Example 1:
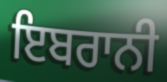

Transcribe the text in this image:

ਇਬਰਾਨੀ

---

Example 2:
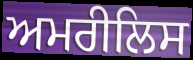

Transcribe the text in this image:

ਅਮਰੀਲਿਸ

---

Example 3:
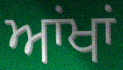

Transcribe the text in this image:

ਆਂਖਾਂ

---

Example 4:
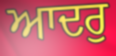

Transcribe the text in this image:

ਆਦਰੁ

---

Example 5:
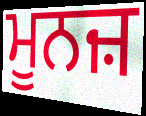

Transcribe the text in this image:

ਮੂਨਜ਼